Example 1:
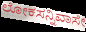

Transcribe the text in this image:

ಲೋಕಸನ್ನಿವಾಸೇ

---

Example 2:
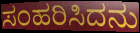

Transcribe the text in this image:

ಸಂಹರಿಸಿದನು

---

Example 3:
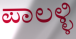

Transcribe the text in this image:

ಪಾಲಳ್ಳಿ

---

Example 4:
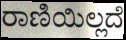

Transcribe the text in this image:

ರಾಣಿಯಿಲ್ಲದೆ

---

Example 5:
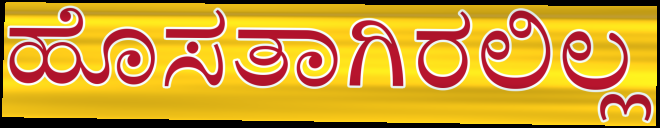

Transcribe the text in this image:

ಹೊಸತಾಗಿರಲಿಲ್ಲ